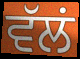
ਵੱਲਂ